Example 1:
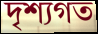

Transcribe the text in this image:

দৃশ্যগত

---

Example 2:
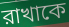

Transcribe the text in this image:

রাখাকে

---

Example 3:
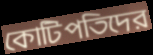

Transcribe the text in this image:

কোটিপতিদের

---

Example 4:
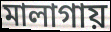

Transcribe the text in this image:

মালাগায়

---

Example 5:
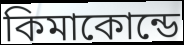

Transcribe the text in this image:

কিমাকোন্ডে